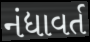
નંદ્યાવર્ત